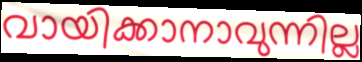
വായിക്കാനാവുന്നില്ല